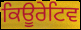
ਕਿਊਰੇਟਿਵ